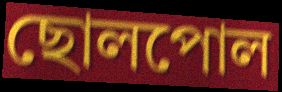
ছোলপোল